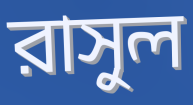
রাসুল